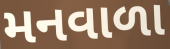
મનવાળા